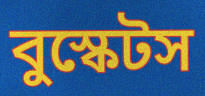
বুস্কেটস